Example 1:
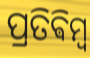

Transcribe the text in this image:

ପ୍ରତିଵିମ୍ବ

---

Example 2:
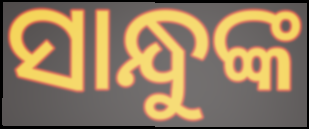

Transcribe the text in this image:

ସାନ୍ଧୁଙ୍କ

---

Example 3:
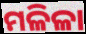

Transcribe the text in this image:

ମଳିଳା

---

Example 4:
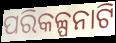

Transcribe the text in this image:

ପରିକଳ୍ପନାଟି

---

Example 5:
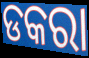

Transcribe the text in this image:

ଡକରା